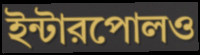
ইন্টারপোলও